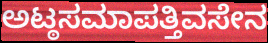
ಅಟ್ಠಸಮಾಪತ್ತಿವಸೇನ